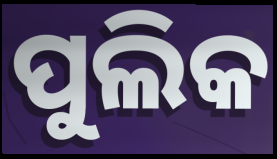
ପୁଲିକ